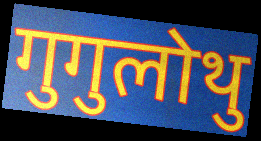
गुगुलोथु